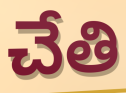
చేతి